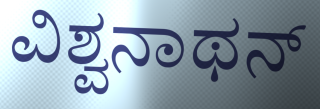
ವಿಶ್ವನಾಥನ್